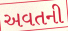
અવતની